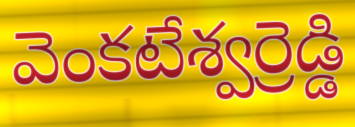
వెంకటేశ్వర్రెడ్డి